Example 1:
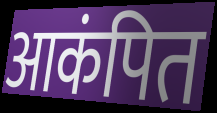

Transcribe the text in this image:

आकंपित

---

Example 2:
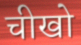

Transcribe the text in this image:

चीखो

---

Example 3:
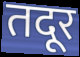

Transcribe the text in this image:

तदूर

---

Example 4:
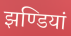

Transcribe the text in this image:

झण्डियां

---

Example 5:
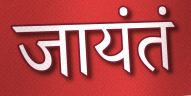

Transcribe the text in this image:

जायंतं